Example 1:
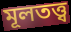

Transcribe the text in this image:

মূলতত্ত্ব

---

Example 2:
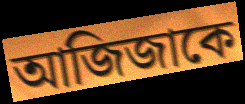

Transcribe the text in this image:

আজিজাকে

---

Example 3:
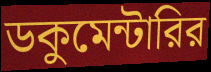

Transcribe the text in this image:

ডকুমেন্টারির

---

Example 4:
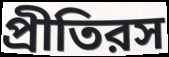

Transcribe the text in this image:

প্রীতিরস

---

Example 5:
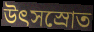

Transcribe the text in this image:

উৎসস্রোত